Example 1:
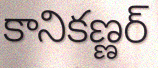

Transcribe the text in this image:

కానికణ్ణర్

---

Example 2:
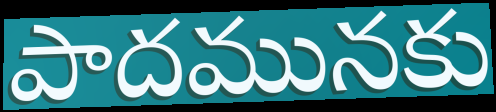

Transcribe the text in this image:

పాదమునకు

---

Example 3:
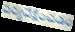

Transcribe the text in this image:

పర్యవేక్షించడం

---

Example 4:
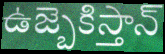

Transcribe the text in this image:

ఉజ్బెకిస్తాన్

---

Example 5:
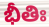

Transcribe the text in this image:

భీతిః